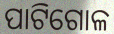
ପାଟିଗୋଳ